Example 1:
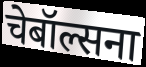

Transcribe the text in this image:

चेबॉल्सना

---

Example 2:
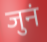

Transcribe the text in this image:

जुनं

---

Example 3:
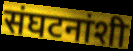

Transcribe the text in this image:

संघटनांशी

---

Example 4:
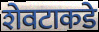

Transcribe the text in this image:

शेवटाकडे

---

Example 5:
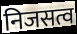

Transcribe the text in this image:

निजसत्व